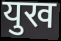
युख